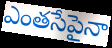
ఎంతసేపైనా